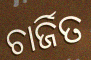
ଚାର୍ଜିତ